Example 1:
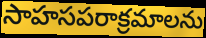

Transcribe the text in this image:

సాహసపరాక్రమాలను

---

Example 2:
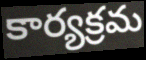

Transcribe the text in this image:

కార్యక్రమ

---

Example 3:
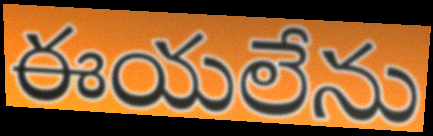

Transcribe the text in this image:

ఈయలేను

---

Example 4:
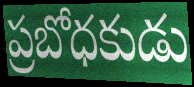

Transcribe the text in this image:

ప్రబోధకుడు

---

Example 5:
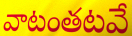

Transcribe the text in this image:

వాటంతటవే